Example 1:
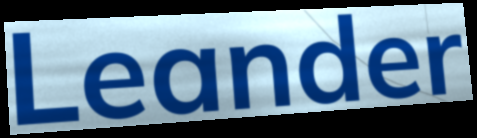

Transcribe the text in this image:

Leander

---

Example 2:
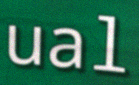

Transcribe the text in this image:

ual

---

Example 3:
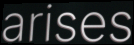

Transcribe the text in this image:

arises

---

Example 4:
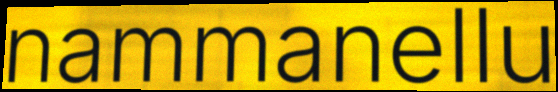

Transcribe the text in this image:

nammanellu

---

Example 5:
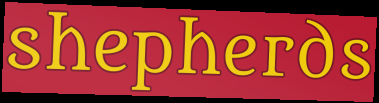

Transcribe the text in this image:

shepherds